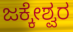
ಜಕ್ಕೇಶ್ವರ